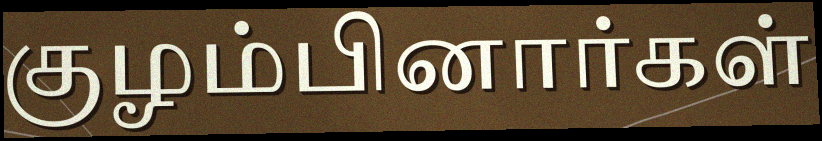
குழம்பினார்கள்